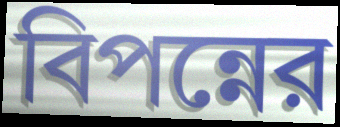
বিপন্নের